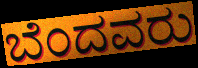
ಬೆಂದವರು